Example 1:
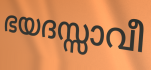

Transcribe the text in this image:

ഭയദസ്സാവീ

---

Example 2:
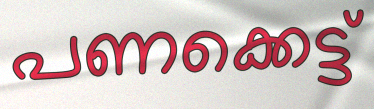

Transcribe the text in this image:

പണക്കെട്ട്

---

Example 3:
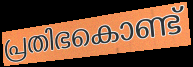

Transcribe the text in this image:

പ്രതിഭകൊണ്ട്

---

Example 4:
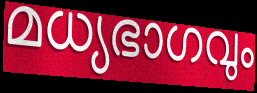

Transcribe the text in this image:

മധ്യഭാഗവും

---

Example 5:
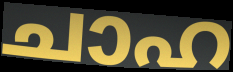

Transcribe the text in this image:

ചാഹ